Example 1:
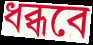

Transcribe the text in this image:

ধব্ধবে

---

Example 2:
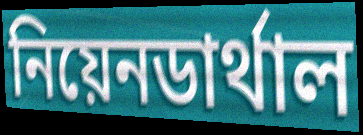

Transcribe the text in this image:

নিয়েনডার্থাল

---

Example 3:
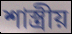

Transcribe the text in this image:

শাস্ত্রীয়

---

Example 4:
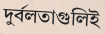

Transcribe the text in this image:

দুর্বলতাগুলিই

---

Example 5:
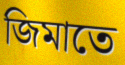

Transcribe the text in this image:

জিমাতে